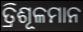
ତ୍ରିଶୂଳମାନ